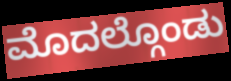
ಮೊದಲ್ಗೊಂಡು